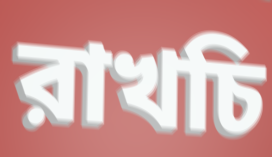
রাখচি